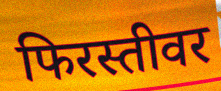
फिरस्तीवर